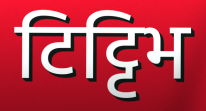
टिट्टिभ